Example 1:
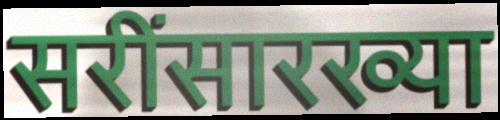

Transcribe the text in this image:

सरींसारख्या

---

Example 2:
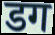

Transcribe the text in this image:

डग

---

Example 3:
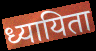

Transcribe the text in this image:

ध्यायिता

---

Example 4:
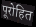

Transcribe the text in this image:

पूरोहित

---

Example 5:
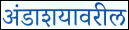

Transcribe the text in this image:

अंडाशयावरील